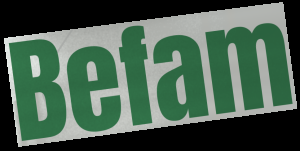
Befam